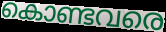
കൊണ്ടവരെ